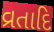
વ્રતાદિ